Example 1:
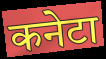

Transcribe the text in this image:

कनेटा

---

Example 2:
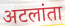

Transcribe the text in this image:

अटलांता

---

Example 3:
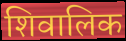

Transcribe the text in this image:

शिवालिक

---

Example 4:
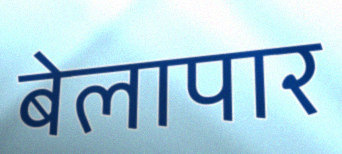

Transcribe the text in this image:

बेलापार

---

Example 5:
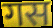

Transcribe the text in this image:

गस